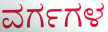
ವರ್ಗಗಳ